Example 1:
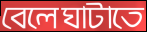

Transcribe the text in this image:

বেলেঘাটাতে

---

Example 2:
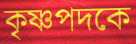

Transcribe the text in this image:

কৃষ্ণপদকে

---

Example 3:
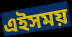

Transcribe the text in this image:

এইসময়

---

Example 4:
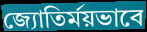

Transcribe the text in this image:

জ্যোতির্ময়ভাবে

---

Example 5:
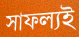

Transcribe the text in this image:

সাফল্যই